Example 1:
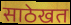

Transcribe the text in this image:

साठेखत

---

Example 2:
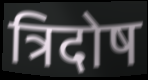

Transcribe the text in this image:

त्रिदोष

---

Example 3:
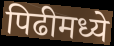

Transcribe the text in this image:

पिढीमध्ये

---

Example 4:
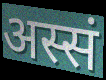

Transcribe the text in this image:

अस्सं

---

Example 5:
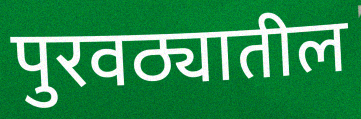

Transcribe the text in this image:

पुरवठ्यातील